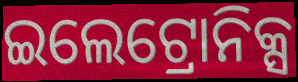
ଇଲେଟ୍ରୋନିକ୍ସ